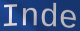
Inde